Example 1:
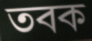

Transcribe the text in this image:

তবক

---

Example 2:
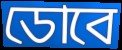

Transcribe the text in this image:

ডোবে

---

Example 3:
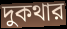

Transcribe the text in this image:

দুকথার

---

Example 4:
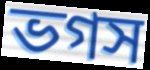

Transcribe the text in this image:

ভগস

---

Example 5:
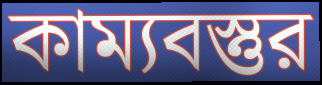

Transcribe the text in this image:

কাম্যবস্তুর